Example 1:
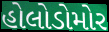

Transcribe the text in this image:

હોલોડોમોર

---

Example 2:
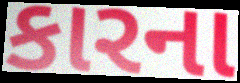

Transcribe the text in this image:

કારના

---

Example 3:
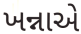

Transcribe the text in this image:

ખન્નાએ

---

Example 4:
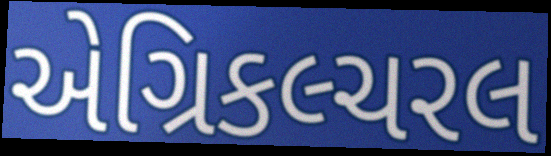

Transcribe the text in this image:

એગ્રિકલ્ચરલ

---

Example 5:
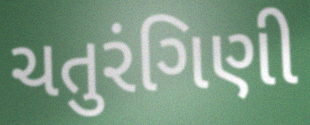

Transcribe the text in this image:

ચતુરંગિણી